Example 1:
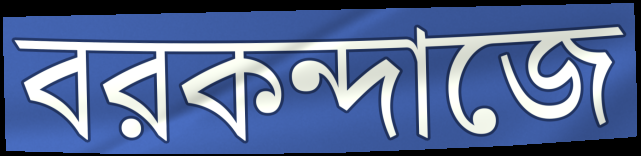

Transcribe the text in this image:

বরকন্দাজে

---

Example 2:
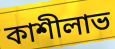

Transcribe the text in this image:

কাশীলাভ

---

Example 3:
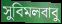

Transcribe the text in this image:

সুবিমলবাবু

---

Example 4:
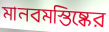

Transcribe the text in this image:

মানবমস্তিষ্কের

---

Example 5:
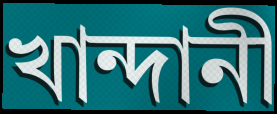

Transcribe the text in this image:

খান্দানী